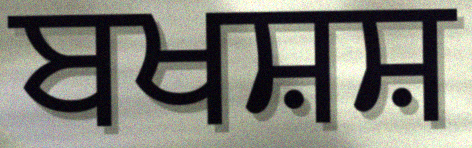
ਬਖਸ਼ਸ਼